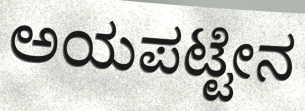
ಅಯಪಟ್ಟೇನ